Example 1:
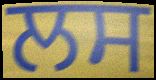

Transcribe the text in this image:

ਲਸ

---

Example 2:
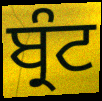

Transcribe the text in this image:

ਬ੍ਰੰਟ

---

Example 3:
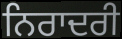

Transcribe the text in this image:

ਨਿਰਾਦਰੀ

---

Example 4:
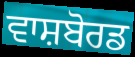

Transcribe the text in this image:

ਵਾਸ਼ਬੋਰਡ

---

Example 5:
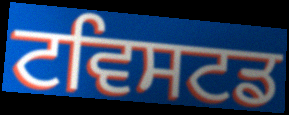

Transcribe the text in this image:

ਟਵਿਸਟਡ